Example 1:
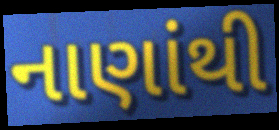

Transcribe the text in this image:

નાણાંથી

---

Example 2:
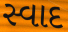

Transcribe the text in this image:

સ્વાદ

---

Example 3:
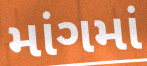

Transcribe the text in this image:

માંગમાં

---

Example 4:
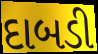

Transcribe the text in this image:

દાબડી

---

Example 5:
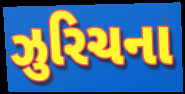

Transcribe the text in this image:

ઝુરિચના